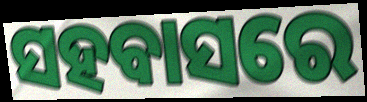
ସହବାସରେ